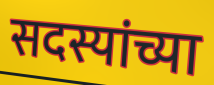
सदस्यांच्या